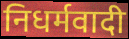
निधर्मवादी